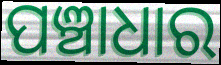
ପଞ୍ଚାଧାର